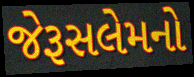
જેરૂસલેમનો